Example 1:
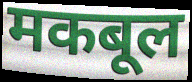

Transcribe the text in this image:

मकबूल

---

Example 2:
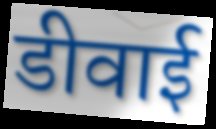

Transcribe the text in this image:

डीवाई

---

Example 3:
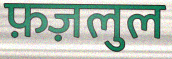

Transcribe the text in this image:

फ़ज़लुल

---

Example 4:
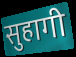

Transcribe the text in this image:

सुहागी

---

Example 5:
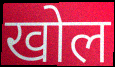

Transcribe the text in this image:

खोल